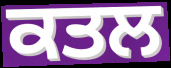
ਕਤਲ